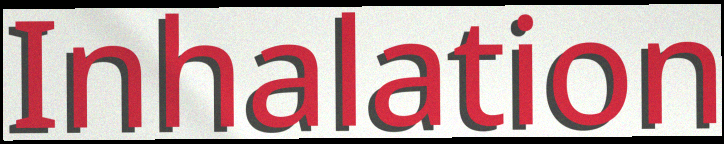
Inhalation